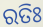
ରତିଃ